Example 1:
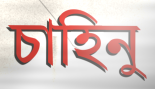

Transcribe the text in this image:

চাহিনু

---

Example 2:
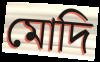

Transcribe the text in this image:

মোদি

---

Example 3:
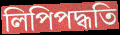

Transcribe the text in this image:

লিপিপদ্ধতি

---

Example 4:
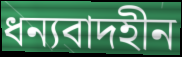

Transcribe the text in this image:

ধন্যবাদহীন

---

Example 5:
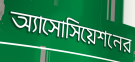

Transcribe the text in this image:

অ্যাসোসিয়েশনের